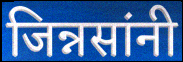
जिन्नसांनी